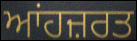
ਆਂਹਜ਼ਰਤ